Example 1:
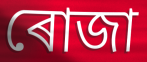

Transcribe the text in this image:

ৰোজা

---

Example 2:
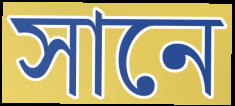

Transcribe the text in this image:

সানে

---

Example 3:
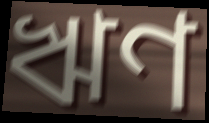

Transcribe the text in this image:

ঋণ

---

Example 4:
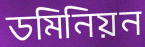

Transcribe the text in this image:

ডমিনিয়ন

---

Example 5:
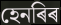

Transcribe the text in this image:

হেনৰিৰ